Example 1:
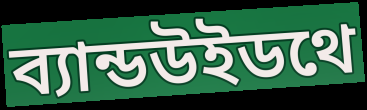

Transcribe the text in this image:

ব্যান্ডউইডথে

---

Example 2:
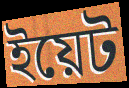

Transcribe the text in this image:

ইয়েট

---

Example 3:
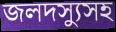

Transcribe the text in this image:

জলদস্যুসহ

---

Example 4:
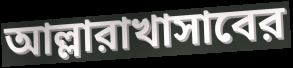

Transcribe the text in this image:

আল্লারাখাসাবের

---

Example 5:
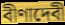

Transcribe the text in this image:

বীণাদেবী